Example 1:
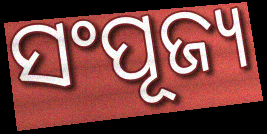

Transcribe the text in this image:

ସଂପୂଜ୍ଯ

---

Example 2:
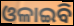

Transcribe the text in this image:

ଓଳାଇବି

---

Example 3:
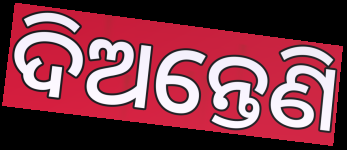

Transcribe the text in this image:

ଦିଅନ୍ତେଣି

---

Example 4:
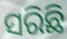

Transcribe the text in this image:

ସରିଛି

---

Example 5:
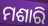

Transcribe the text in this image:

ମଶାରି